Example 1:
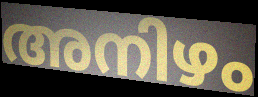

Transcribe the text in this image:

അനിഴം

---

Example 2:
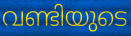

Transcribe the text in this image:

വണ്ടിയുടെ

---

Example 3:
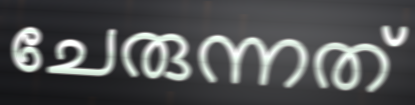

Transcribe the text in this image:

ചേരുന്നത്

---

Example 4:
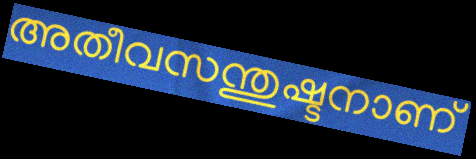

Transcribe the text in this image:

അതീവസന്തുഷ്ടനാണ്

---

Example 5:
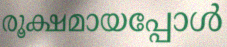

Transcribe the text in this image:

രൂക്ഷമായപ്പോൾ